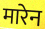
मारेन